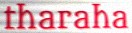
tharaha